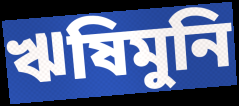
ঋষিমুনি